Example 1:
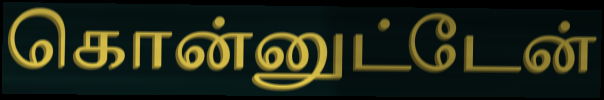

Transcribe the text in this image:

கொன்னுட்டேன்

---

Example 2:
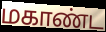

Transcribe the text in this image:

மகாண்ட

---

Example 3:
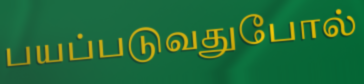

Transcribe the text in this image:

பயப்படுவதுபோல்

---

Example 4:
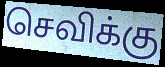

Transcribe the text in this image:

செவிக்கு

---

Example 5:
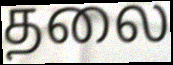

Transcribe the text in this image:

தலை